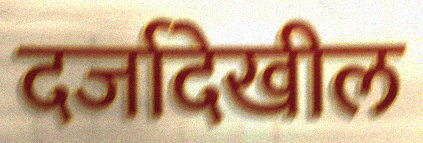
दर्जादेखील